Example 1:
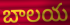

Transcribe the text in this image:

బాలయ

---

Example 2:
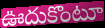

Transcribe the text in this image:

ఊదుకొంటూ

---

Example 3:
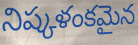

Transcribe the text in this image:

నిష్కళంకమైన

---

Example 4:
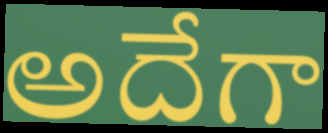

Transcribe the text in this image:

అదేగా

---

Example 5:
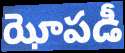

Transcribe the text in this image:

ఝోపడీ